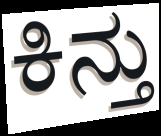
ಕಿನ್ತು